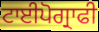
ਟਾਈਪੋਗ੍ਰਾਫੀ